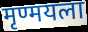
मृण्मयला